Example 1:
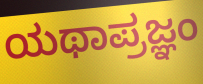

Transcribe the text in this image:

ಯಥಾಪ್ರಜ್ಞಂ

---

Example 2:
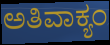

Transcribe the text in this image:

ಅತಿವಾಕ್ಯಂ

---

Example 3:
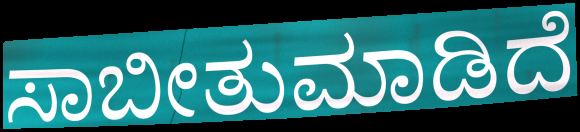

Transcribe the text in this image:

ಸಾಬೀತುಮಾಡಿದೆ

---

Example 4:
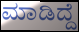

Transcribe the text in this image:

ಮಾಡಿದ್ದೆ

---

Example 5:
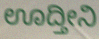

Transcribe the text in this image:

ಊದ್ತೀನಿ